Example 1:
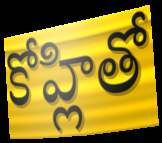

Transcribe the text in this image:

కోహ్లితో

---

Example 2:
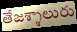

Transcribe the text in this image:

తేజశ్శాలురు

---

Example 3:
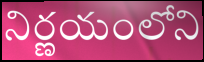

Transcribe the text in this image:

నిర్ణయంలోని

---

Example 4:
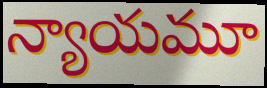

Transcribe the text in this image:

న్యాయమూ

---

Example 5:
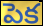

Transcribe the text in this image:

పెక